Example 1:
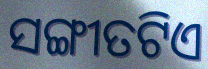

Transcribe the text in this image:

ସଙ୍ଗୀତଟିଏ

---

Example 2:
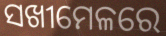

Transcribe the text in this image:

ସଖୀମେଳରେ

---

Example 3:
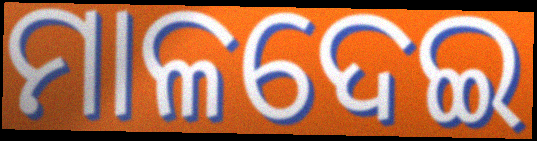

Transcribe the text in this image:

ମାଳଦେଇ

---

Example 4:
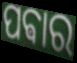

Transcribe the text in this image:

ପଵାର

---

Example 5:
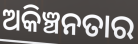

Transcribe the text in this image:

ଅକିଞ୍ଚନତାର